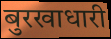
बुरखाधारी